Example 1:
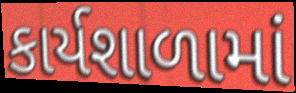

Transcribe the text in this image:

કાર્યશાળામાં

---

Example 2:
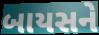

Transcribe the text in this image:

બાયસને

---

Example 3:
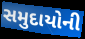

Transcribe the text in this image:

સમુદાયોની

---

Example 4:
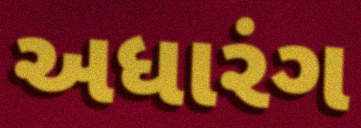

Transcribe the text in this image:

અધારંગ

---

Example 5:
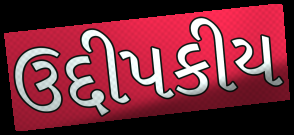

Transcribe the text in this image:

ઉદ્દીપકીય